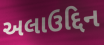
અલાઉદ્દિન